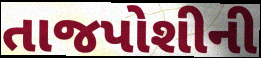
તાજપોશીની